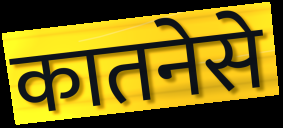
कातनेसे